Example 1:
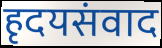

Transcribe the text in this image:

हृदयसंवाद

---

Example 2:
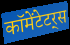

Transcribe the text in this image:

कॉमेंटेटर्स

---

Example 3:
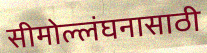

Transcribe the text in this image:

सीमोल्लंघनासाठी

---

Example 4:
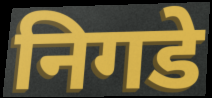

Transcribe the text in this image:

निगडे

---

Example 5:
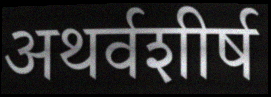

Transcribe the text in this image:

अथर्वशीर्ष